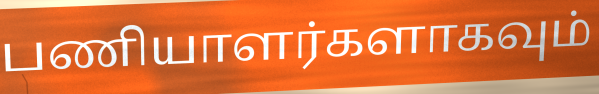
பணியாளர்களாகவும்